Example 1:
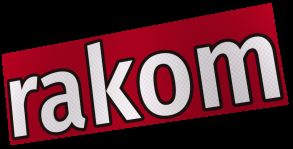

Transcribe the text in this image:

rakom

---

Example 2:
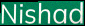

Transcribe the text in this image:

Nishad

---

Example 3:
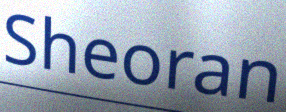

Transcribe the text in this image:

Sheoran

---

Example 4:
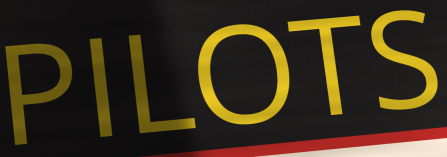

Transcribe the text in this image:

PILOTS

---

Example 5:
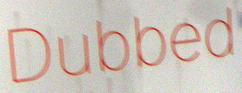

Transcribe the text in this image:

Dubbed